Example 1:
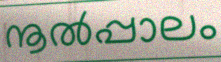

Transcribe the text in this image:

നൂൽപ്പാലം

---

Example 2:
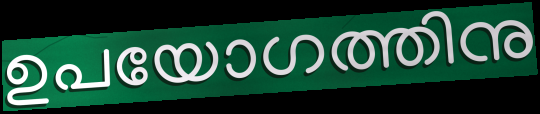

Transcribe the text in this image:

ഉപയോഗത്തിനു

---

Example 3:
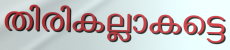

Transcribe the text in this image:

തിരികല്ലാകട്ടെ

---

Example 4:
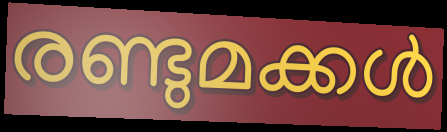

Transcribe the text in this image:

രണ്ടുമക്കൾ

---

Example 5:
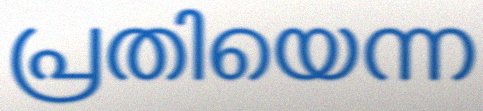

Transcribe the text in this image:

പ്രതിയെന്ന